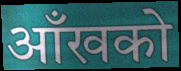
आँखको